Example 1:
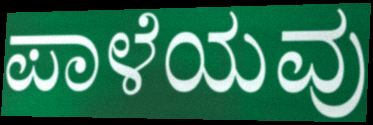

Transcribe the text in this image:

ಪಾಳೆಯವು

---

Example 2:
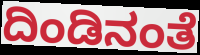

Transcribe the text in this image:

ದಿಂಡಿನಂತೆ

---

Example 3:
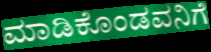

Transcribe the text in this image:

ಮಾಡಿಕೊಂಡವನಿಗೆ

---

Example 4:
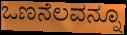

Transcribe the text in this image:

ಒಣನೆಲವನ್ನೂ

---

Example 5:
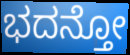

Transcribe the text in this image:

ಭದನ್ತೋ